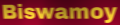
Biswamoy